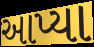
આપ્યા